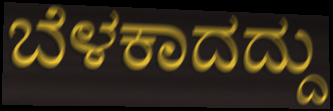
ಬೆಳಕಾದದ್ದು